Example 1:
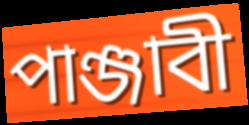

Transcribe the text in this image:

পাঞ্জাবী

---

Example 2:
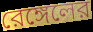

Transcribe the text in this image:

রেঙ্গেলের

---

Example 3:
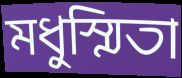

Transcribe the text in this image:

মধুস্মিতা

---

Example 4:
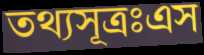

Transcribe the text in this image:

তথ্যসূত্রঃএস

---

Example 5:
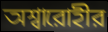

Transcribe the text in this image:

অশ্বারোহীর